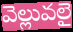
వెల్లువలై